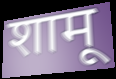
शामू